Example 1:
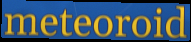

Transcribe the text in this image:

meteoroid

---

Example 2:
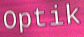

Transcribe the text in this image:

Optik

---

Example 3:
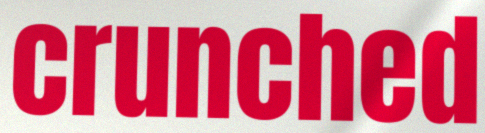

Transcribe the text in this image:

crunched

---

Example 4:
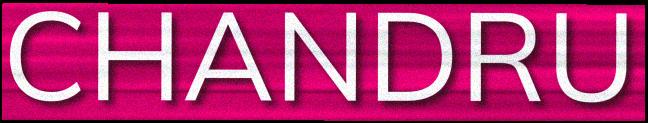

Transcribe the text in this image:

CHANDRU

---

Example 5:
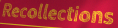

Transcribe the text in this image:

Recollections